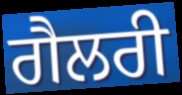
ਗੈਲਰੀ